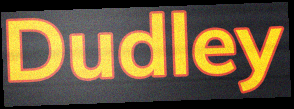
Dudley